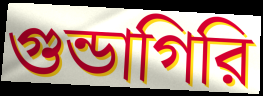
গুন্ডাগিরি